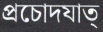
প্রচোদযাত্